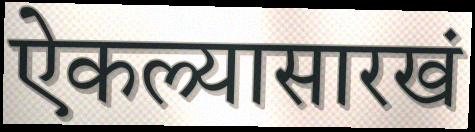
ऐकल्यासारखं